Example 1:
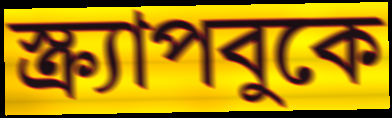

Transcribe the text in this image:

স্ক্র্যাপবুকে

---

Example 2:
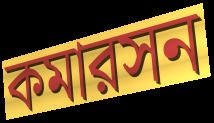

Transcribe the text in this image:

কমারসন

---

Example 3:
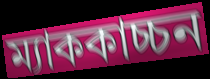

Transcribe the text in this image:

ম্যাককাচ্চন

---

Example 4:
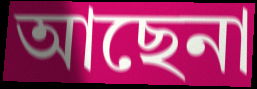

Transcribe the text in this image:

আছেনা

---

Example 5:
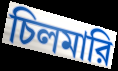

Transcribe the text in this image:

চিলমারি